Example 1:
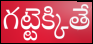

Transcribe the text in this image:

గట్టెక్కితే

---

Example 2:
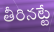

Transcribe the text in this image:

తీరినట్టే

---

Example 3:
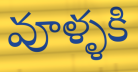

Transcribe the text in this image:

వూళ్ళకి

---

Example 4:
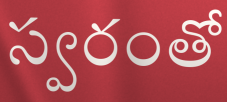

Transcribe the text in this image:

స్వరంతో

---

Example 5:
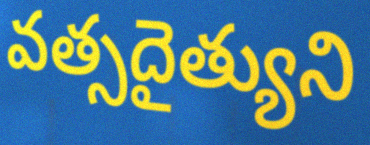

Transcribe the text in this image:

వత్సదైత్యుని